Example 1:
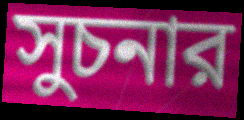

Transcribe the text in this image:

সুচনার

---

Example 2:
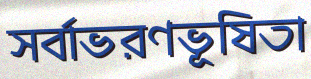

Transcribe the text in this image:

সর্বাভরণভূষিতা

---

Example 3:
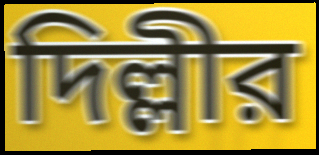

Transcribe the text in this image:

দিল্লীর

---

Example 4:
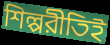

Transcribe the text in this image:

শিল্পরীতিই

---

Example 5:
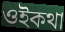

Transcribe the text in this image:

ওইকথা